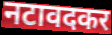
नटावदकर